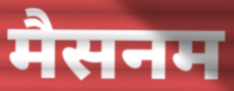
मैसनम